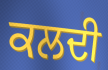
ਕਲਦੀ